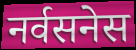
नर्वसनेस